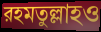
রহমতুল্লাহও